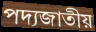
পদ্যজাতীয়